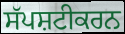
ਸੱਪਸ਼ਟੀਕਰਨ